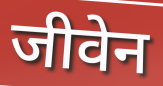
जीवेन